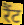
रैंट